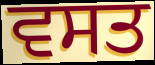
ਵਸਤ